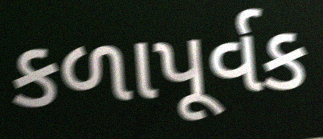
કળાપૂર્વક